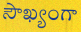
సౌఖ్యంగా